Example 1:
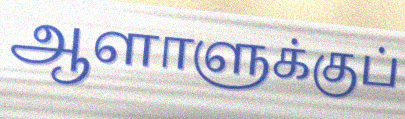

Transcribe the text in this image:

ஆளாளுக்குப்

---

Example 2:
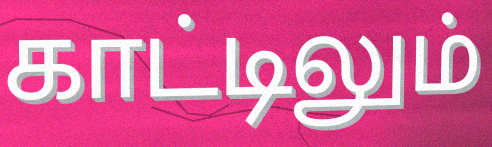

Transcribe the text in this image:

காட்டிலும்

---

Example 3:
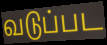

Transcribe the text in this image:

வடுப்பட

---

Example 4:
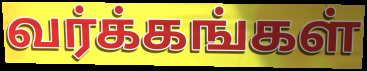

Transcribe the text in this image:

வர்க்கங்கள்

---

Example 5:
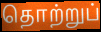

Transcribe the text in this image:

தொற்றுப்